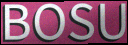
BOSU